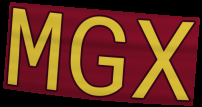
MGX